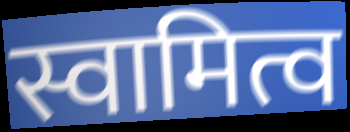
स्वामित्व